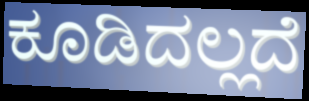
ಕೂಡಿದಲ್ಲದೆ